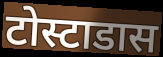
टोस्टाडास